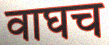
वाघच